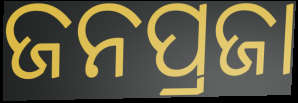
ଜନପ୍ରଜା